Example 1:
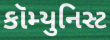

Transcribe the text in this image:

કૉમ્યુનિસ્ટ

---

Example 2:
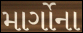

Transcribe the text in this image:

માર્ગોના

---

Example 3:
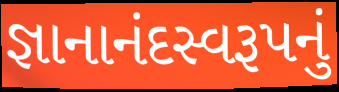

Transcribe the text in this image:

જ્ઞાનાનંદસ્વરૂપનું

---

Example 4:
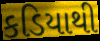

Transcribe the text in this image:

કડિયાથી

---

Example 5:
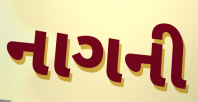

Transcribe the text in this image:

નાગની